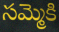
సమ్మెకి